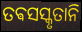
ତଵସସ୍କୃତାନି